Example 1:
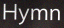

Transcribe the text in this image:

Hymn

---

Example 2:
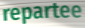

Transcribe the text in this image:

repartee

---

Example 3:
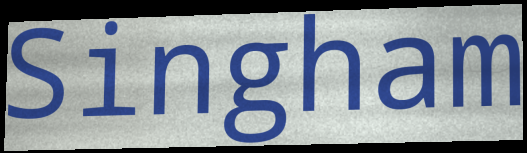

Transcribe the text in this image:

Singham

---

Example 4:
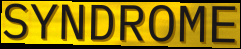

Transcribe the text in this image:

SYNDROME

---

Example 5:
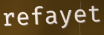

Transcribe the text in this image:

refayet